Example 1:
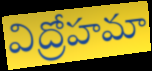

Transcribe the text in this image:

విద్రోహమా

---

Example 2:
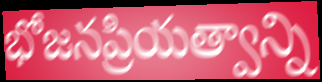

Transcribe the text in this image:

భోజనప్రియత్వాన్ని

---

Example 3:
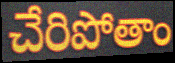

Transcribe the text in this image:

చేరిపోతాం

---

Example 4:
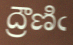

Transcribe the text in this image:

ద్రౌణిఁ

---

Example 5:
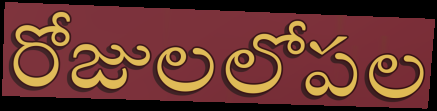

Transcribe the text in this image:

రోజులలోపల